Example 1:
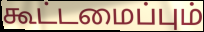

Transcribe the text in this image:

கூட்டமைப்பும்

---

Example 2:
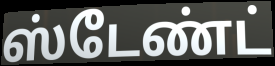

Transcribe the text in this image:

ஸ்டேண்ட்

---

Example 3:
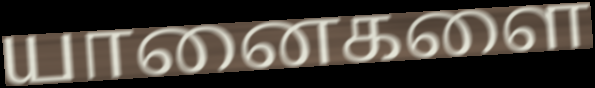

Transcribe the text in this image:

யானைகளை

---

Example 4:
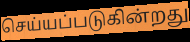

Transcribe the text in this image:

செய்யப்படுகின்றது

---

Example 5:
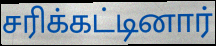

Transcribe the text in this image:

சரிக்கட்டினார்